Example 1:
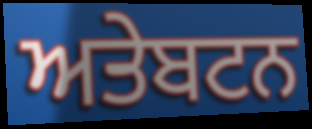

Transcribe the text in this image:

ਅਤੇਬਟਨ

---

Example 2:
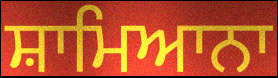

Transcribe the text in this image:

ਸ਼ਾਮਿਆਨਾ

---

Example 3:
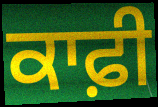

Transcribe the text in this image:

ਕਾਫ਼ੀ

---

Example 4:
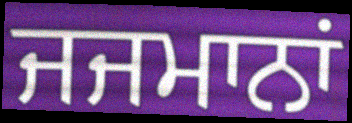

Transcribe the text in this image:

ਜਜਮਾਨਾਂ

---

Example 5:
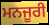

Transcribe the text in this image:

ਮਨਜੂਰੀ